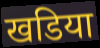
खडिया